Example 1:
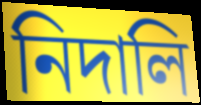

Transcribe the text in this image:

নিদালি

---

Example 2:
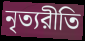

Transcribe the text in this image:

নৃত্যরীতি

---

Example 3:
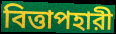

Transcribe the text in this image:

বিত্তাপহারী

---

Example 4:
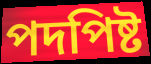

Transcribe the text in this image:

পদপিষ্ট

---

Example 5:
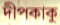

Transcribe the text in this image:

দীপকাকু